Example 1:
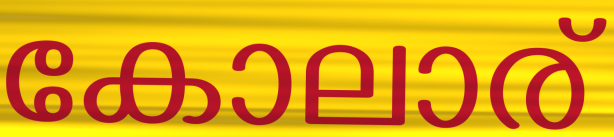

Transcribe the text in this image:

കോലാര്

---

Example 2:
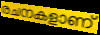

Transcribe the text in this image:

രചനകളാണ്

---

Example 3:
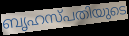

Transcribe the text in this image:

ബൃഹസ്പതിയുടെ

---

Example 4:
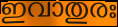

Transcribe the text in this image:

ഇവാതുരഃ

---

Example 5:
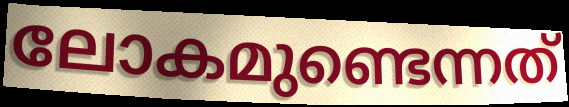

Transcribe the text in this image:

ലോകമുണ്ടെന്നത്